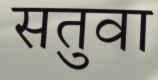
सतुवा